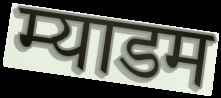
म्याडम